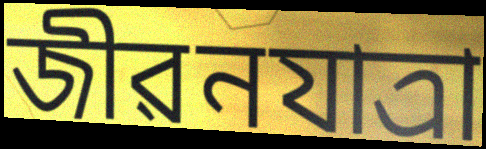
জীৱনযাত্ৰা